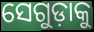
ସେଗୁଡ଼ାକୁ